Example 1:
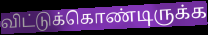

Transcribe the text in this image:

விட்டுக்கொண்டிருக்க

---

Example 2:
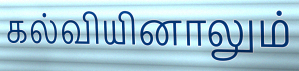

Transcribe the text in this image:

கல்வியினாலும்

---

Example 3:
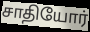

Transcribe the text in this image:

சாதியோர்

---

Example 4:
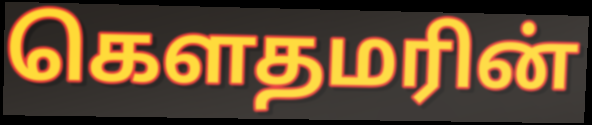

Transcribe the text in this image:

கௌதமரின்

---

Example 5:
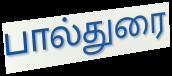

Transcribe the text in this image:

பால்துரை